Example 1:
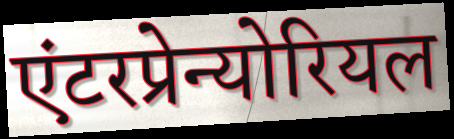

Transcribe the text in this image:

एंटरप्रेन्योरियल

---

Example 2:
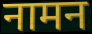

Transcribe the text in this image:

नामन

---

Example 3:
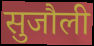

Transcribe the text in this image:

सुजौली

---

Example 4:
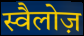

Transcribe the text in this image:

स्वैलोज़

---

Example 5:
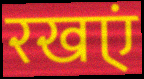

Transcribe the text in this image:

रखएं